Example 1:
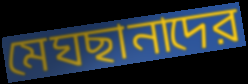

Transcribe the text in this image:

মেঘছানাদের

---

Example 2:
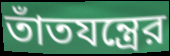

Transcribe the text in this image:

তাঁতযন্ত্রের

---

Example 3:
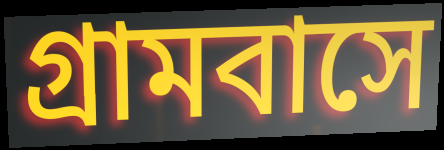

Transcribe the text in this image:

গ্রামবাসে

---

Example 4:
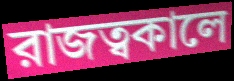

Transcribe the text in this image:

রাজত্বকালে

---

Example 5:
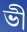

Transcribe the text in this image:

ভী